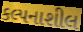
કલ્પનાશીલ